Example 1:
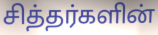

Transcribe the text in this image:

சித்தர்களின்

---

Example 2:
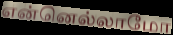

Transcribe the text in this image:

என்னெல்லாமோ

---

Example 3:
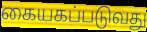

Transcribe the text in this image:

கையகப்படுவது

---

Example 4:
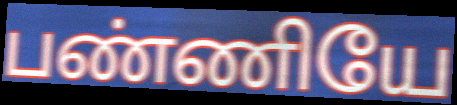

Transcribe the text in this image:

பண்ணியே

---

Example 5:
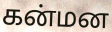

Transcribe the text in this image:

கன்மன